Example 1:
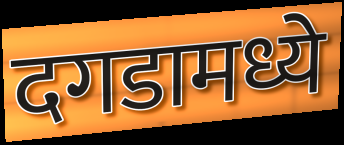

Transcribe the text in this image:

दगडामध्ये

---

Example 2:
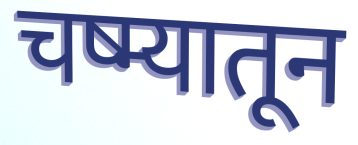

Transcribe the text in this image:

चष्म्यातून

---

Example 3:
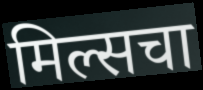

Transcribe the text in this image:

मिल्सचा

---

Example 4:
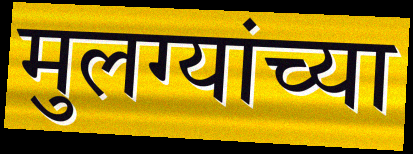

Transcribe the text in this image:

मुलग्यांच्या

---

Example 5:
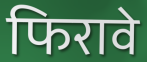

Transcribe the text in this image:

फिरावे